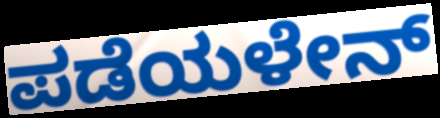
ಪಡೆಯಳೇನ್